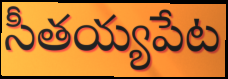
సీతయ్యపేట